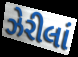
ઝેરીલાં